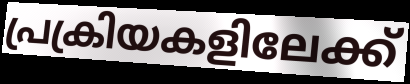
പ്രക്രിയകളിലേക്ക്